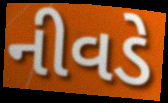
નીવડે